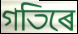
গতিৰে